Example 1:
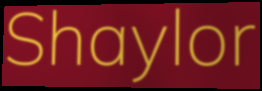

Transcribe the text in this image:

Shaylor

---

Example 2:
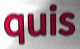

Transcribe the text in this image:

quis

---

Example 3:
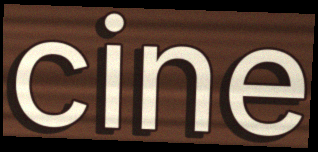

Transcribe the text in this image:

cine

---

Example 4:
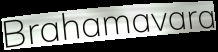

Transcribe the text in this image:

Brahamavara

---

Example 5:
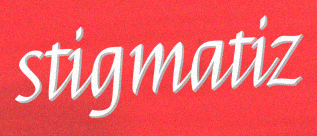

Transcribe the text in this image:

stigmatiz